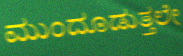
ಮುಂದೂಡುತ್ತಲೇ